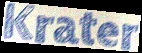
Krater